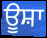
ਊਸ਼ਾ